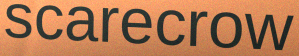
scarecrow